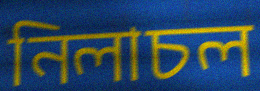
নিলাচল